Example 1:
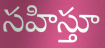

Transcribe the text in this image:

సహిస్తూ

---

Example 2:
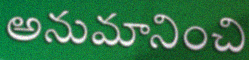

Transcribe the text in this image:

అనుమానించి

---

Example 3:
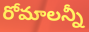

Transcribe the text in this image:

రోమాలన్నీ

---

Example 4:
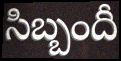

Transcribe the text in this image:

సిబ్బందీ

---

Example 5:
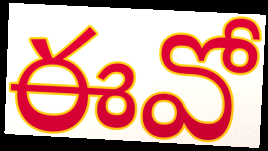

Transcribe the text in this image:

ఈవో